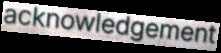
acknowledgement